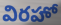
విరహో